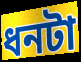
ধনটা